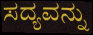
ಸದ್ಯವನ್ನು